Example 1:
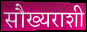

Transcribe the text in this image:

सौख्यराशी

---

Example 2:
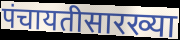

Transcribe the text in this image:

पंचायतीसारख्या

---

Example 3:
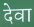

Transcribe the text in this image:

देवा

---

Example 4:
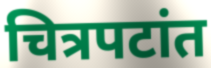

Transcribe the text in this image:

चित्रपटांत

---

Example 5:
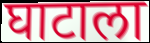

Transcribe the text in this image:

घाटाला